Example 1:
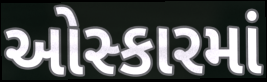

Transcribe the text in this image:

ઓસ્કારમાં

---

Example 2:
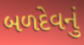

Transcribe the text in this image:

બળદેવનું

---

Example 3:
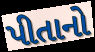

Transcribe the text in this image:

પીતાનો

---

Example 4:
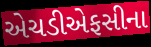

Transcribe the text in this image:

એચડીએફસીના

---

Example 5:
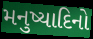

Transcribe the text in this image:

મનુષ્યાદિનો